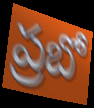
ప్రబో